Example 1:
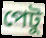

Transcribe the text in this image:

পেটু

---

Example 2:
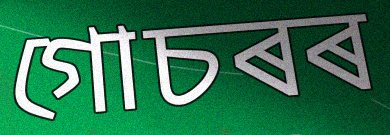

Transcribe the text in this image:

গোচৰৰ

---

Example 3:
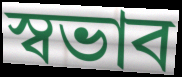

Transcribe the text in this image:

স্বভাব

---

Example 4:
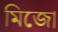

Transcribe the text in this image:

মিজো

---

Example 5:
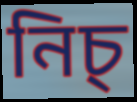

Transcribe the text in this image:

নিচ্